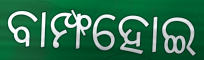
ବାମ୍ଫହୋଇ